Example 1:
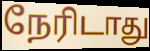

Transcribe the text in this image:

நேரிடாது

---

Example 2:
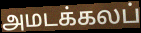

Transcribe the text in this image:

அமடக்கலப்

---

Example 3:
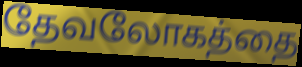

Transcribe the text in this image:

தேவலோகத்தை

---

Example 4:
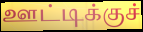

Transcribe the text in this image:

ஊட்டிக்குச்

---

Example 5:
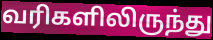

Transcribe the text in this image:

வரிகளிலிருந்து